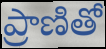
ప్రాణితో